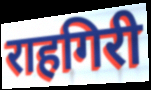
राहगिरी